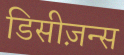
डिसीज़न्स